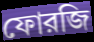
ফোরজি